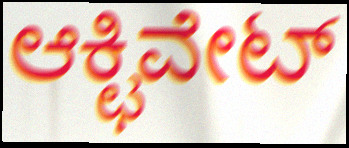
ಆಕ್ಟಿವೇಟ್